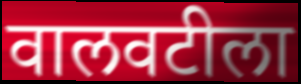
वालवटीला